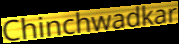
Chinchwadkar